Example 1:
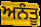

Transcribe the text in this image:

ਅਨੰਤੂ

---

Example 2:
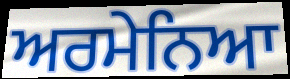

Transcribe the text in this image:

ਅਰਮੇਨਿਆ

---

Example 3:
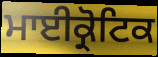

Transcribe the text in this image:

ਮਾਈਕ੍ਰੋਟਿਕ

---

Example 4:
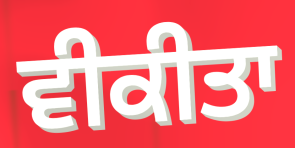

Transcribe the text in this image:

ਵੀਕੀਤਾ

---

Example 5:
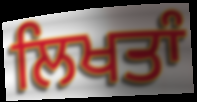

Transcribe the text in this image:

ਲਿਖਤਾੰ